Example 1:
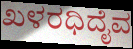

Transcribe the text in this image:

ಖಳರಧಿದೈವ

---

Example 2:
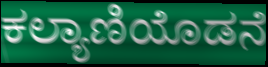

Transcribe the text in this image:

ಕಲ್ಯಾಣಿಯೊಡನೆ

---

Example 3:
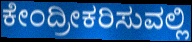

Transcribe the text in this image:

ಕೇಂದ್ರೀಕರಿಸುವಲ್ಲಿ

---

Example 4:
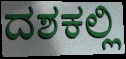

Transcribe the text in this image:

ದಶಕಲ್ಲಿ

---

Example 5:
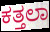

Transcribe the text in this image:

ಕತ್ತಲಾ